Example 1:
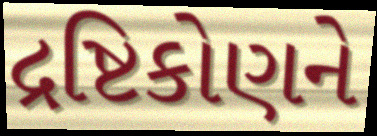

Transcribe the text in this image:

દ્રષ્ટિકોણને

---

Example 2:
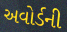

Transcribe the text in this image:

અવોર્ડની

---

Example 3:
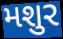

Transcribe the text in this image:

મશુર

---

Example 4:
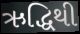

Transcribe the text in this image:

ઋદ્ધિથી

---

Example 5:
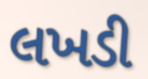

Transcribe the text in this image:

લખડી